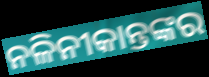
ନଳିନୀକାନ୍ତଙ୍କର